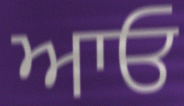
ਆਓ